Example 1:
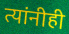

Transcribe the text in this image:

त्यांनीही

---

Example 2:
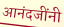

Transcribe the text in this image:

आनंदजींनी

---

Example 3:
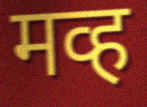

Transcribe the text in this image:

मव्ह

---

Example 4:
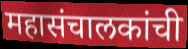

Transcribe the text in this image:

महासंचालकांची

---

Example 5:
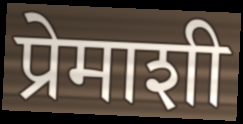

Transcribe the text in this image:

प्रेमाशी